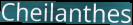
Cheilanthes